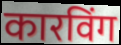
कारविंग